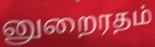
னுறைரதம்